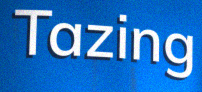
Tazing